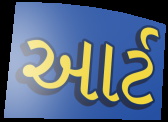
આર્ટ